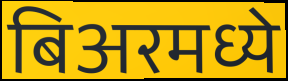
बिअरमध्ये